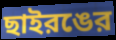
ছাইরঙের